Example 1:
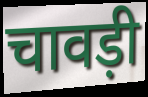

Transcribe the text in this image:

चावड़ी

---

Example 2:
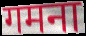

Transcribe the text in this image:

गमना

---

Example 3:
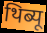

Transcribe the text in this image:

थिब्यू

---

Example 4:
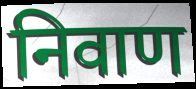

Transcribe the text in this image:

निवाण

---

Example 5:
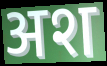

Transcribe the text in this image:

अश